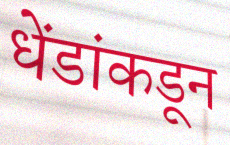
धेंडांकडून